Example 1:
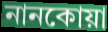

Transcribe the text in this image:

নানকোয়া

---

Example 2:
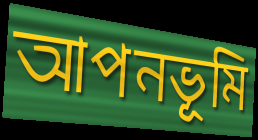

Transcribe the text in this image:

আপনভূমি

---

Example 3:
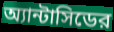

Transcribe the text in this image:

অ্যান্টাসিডের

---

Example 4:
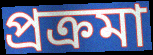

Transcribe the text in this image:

প্রক্রমা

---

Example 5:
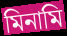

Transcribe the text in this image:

মিনামি